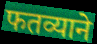
फतव्याने